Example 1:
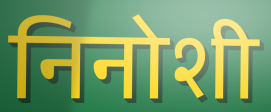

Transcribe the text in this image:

निनोशी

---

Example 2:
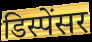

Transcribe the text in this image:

डिस्पेंसर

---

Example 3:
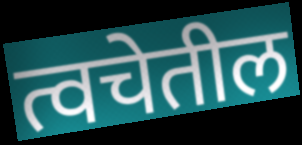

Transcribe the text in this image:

त्वचेतील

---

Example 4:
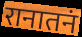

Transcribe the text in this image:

रानातनं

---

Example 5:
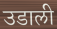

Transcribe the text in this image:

उडाली